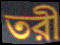
তরী